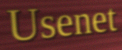
Usenet